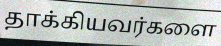
தாக்கியவர்களை